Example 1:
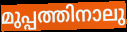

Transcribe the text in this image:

മുപ്പത്തിനാലു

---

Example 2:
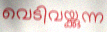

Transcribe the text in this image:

വെടിവയ്ക്കുന്ന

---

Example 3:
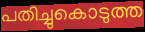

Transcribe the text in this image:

പതിച്ചുകൊടുത്ത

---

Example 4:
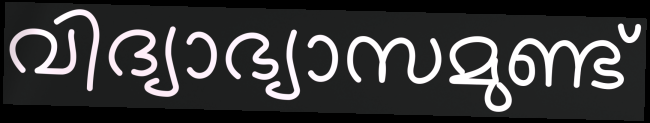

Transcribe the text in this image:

വിദ്യാഭ്യാസമുണ്ട്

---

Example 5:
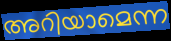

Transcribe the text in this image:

അറിയാമെന്ന